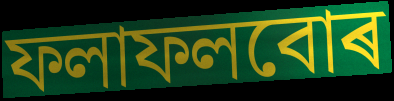
ফলাফলবোৰ